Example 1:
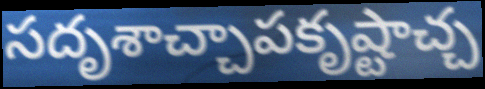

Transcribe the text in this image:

సదృశాచ్చాపకృష్టాచ్చ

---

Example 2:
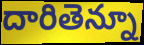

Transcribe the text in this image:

దారితెన్నూ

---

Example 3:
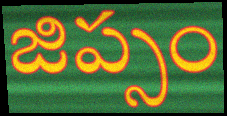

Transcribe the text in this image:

జిప్సం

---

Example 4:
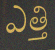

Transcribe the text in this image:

ఎత్తి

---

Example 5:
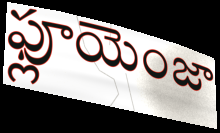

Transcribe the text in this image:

ఫ్లూయెంజా